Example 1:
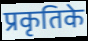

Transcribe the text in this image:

प्रकृतिके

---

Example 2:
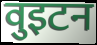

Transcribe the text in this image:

वुइटन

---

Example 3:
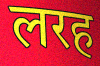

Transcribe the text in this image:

लरह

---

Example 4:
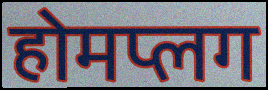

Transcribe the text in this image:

होमप्लग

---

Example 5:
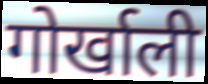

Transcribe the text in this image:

गोर्खाली